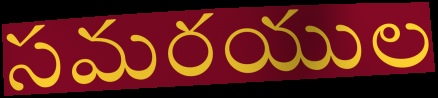
సమరయుల